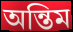
অন্তিম